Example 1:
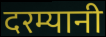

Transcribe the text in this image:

दरम्यानी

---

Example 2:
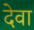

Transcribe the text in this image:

देवा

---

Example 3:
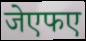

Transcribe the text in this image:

जेएफए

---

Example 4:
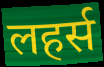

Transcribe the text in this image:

लहर्स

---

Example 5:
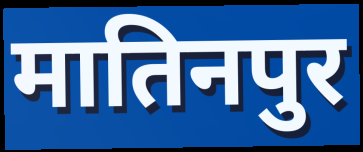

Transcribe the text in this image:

मातिनपुर